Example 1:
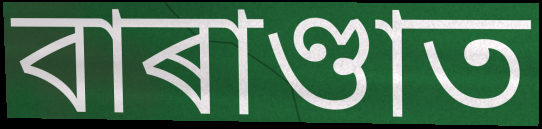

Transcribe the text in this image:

বাৰাণ্ডাত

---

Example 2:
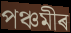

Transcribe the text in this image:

পঞ্চমীৰ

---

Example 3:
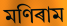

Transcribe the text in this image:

মণিৰাম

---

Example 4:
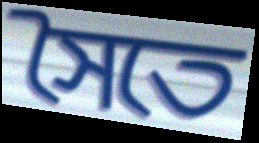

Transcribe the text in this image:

সৈতে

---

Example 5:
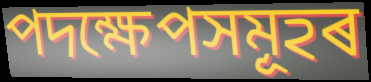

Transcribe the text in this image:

পদক্ষেপসমূহৰ